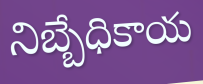
నిబ్బేధికాయ